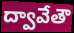
ద్వావేతౌ